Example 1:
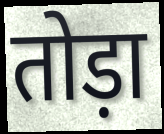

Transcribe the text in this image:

तोड़ा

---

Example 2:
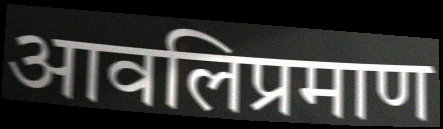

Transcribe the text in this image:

आवलिप्रमाण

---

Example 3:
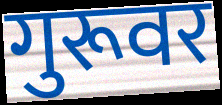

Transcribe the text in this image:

गुरूवर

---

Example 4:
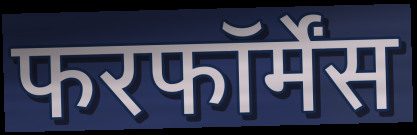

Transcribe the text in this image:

फरफॉर्मेंस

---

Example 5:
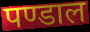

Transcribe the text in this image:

पण्डाल